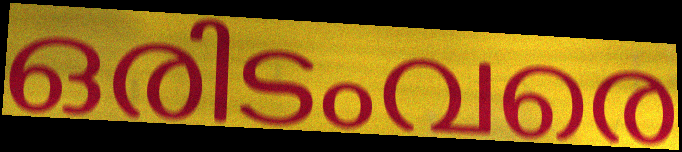
ഒരിടംവരെ